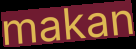
makan